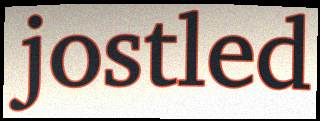
jostled